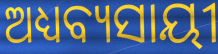
ଅଧ୍ୟବ୍ୟସାୟୀ